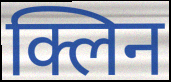
क्लिन